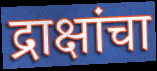
द्राक्षांचा